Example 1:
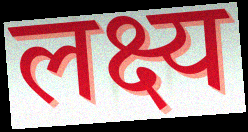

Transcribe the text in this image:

लक्ष्य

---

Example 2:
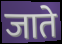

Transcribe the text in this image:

जाते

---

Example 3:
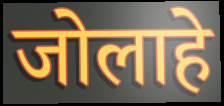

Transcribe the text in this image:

जोलाहे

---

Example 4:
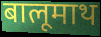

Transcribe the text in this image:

बालूमाथ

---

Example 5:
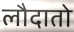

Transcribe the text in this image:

लौदातो